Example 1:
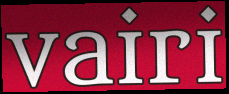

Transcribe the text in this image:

vairi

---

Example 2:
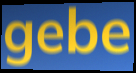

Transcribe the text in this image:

gebe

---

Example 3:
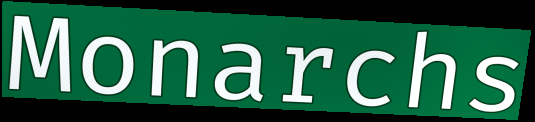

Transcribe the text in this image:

Monarchs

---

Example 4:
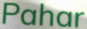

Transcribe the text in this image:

Pahar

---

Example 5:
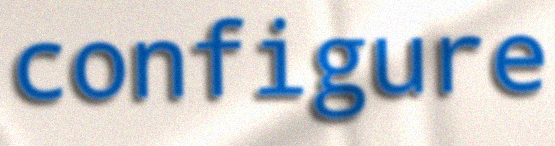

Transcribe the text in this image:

configure